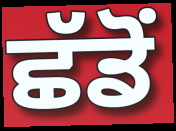
ਛੱਡੋਂ